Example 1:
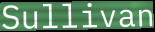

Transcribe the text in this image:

Sullivan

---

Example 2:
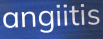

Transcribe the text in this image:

angiitis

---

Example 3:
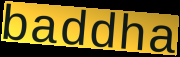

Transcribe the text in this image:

baddha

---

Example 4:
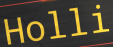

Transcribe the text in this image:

Holli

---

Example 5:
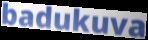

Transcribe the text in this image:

badukuva